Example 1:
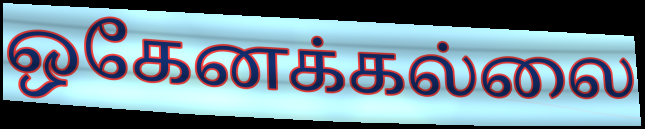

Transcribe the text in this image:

ஒகேனக்கல்லை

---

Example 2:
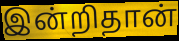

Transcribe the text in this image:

இன்றிதான்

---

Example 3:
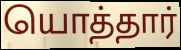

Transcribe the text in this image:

யொத்தார்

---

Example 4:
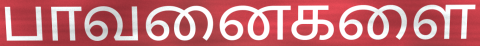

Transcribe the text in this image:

பாவனைகளை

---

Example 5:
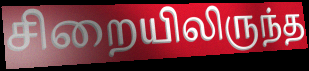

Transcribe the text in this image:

சிறையிலிருந்த